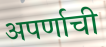
अपर्णाची